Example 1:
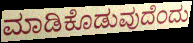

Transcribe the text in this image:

ಮಾಡಿಕೊಡುವುದೆಂದು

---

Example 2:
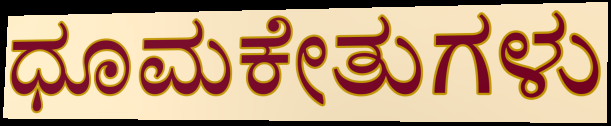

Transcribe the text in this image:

ಧೂಮಕೇತುಗಳು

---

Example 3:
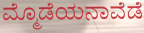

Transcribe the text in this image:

ಮ್ಮೊಡೆಯನಾವೆಡೆ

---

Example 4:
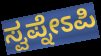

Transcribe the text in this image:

ಸ್ವಪ್ನೇಽಪಿ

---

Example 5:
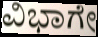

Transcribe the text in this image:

ವಿಭಾಗೇ